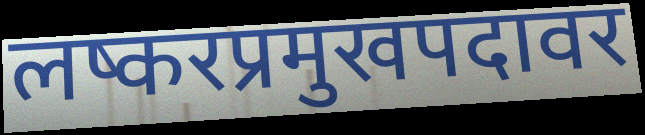
लष्करप्रमुखपदावर